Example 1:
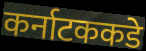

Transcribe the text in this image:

कर्नाटककडे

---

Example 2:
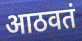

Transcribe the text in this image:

आठवतं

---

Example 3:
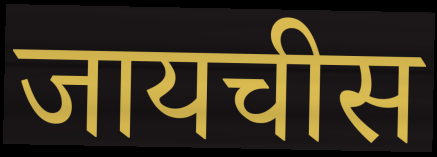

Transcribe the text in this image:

जायचीस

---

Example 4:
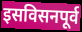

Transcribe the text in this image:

इसविसनपूर्व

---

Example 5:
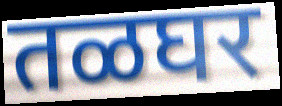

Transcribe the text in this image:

तळघर